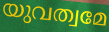
യുവത്വമേ